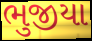
ભુજીયા